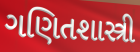
ગણિતશાસ્ત્રી